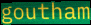
goutham